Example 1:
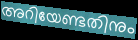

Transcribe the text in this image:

അറിയേണ്ടതിനും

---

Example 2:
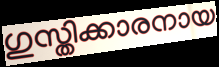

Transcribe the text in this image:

ഗുസ്തിക്കാരനായ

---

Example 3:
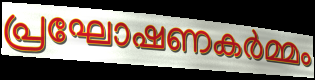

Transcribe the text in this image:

പ്രഘോഷണകർമ്മം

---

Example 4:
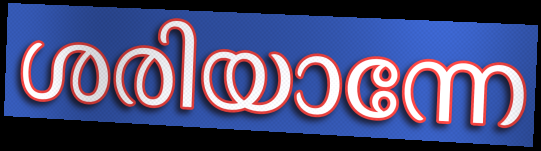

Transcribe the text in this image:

ശരിയാന്നേ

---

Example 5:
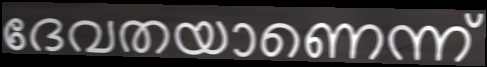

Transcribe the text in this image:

ദേവതയാണെന്ന്